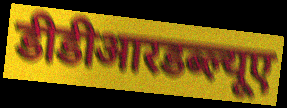
डीडीआरडब्ल्यूए